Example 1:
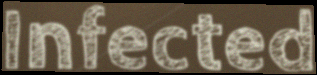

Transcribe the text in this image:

Infected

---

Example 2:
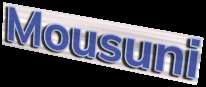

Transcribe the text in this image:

Mousuni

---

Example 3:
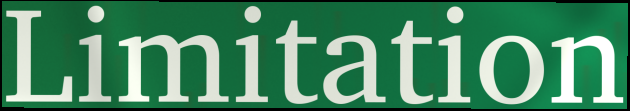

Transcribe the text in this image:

Limitation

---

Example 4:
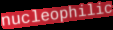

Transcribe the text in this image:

nucleophilic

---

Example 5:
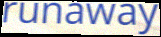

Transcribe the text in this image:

runaway